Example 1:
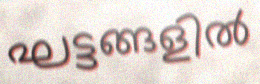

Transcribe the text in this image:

ഘട്ടങ്ങളിൽ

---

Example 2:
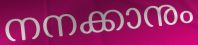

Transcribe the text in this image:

നനക്കാനും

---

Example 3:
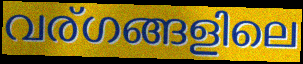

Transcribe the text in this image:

വര്ഗങ്ങളിലെ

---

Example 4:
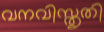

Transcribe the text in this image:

വനവിസ്തൃതി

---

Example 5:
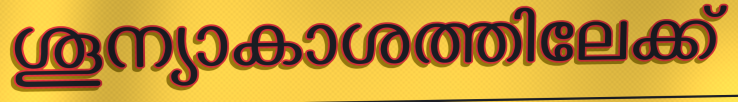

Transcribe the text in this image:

ശൂന്യാകാശത്തിലേക്ക്